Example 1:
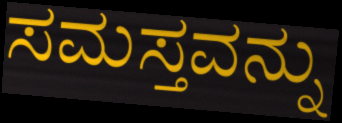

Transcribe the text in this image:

ಸಮಸ್ತವನ್ನು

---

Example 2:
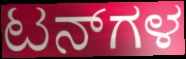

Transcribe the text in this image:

ಟನ್‌ಗಳ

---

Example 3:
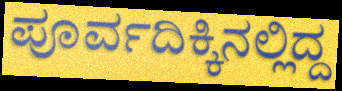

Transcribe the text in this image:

ಪೂರ್ವದಿಕ್ಕಿನಲ್ಲಿದ್ದ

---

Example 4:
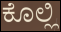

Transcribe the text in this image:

ಕೊಲ್ಲಿ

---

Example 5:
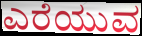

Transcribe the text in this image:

ಎರೆಯುವ